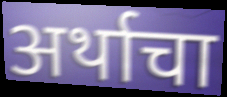
अर्थाचा